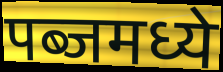
पब्जमध्ये